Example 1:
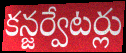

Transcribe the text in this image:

కన్జర్వేటర్లు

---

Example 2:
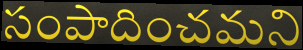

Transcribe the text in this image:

సంపాదించమని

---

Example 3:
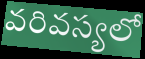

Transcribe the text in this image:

వరివస్యలో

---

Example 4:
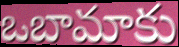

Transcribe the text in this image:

ఒబామాకు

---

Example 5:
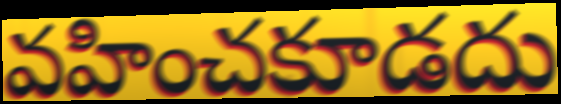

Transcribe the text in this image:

వహించకూడదు